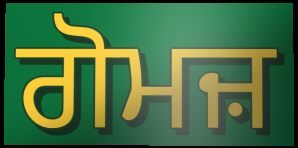
ਗੋਮਜ਼